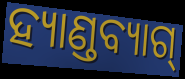
ହ୍ୟାଣ୍ଡବ୍ୟାଗ୍